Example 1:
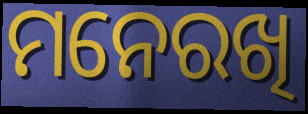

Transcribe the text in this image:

ମନେରଖି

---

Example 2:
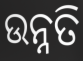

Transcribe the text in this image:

ଉନ୍ନତି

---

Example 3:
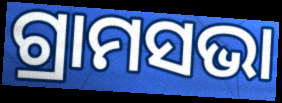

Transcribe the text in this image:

ଗ୍ରାମସଭା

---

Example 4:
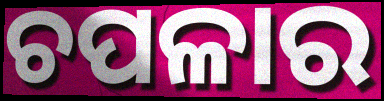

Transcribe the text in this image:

ଚପଳାର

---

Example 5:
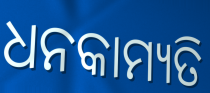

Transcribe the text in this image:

ଧନକାମ୍ୟତି